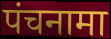
पंचनामा